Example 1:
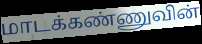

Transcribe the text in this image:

மாடக்கண்ணுவின்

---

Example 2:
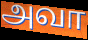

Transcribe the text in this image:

அவா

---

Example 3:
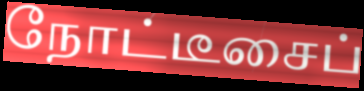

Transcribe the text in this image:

நோட்டீசைப்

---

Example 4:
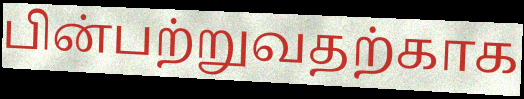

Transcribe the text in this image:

பின்பற்றுவதற்காக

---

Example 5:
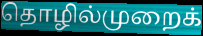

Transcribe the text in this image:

தொழில்முறைக்